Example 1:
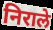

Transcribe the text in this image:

निराले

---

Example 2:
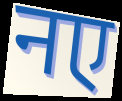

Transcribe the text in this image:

नए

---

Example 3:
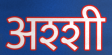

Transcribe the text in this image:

अश्शी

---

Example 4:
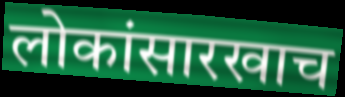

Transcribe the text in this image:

लोकांसारखाच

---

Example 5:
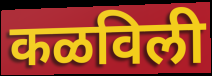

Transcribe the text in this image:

कळविली